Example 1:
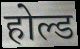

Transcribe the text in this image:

होल्ड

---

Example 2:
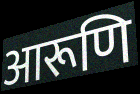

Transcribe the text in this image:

आरूणि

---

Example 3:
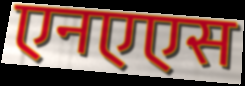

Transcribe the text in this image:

एनएएस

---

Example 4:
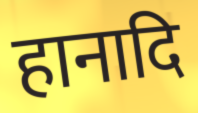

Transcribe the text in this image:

हानादि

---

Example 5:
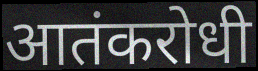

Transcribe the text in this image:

आतंकरोधी